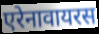
एरेनावायरस